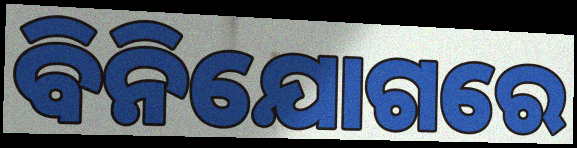
ବିନିଯୋଗରେ